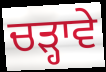
ਚੜ੍ਹਾਵੇ